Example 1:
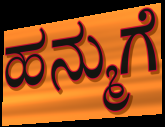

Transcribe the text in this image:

ಹನ್ಮುಗೆ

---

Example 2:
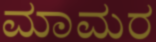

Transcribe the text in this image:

ಮಾಮರ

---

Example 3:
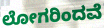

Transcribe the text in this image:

ಲೋಗರಿಂದವೆ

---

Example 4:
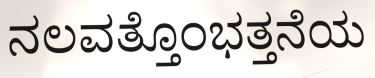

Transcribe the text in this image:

ನಲವತ್ತೊಂಭತ್ತನೆಯ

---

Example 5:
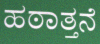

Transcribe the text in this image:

ಹಠಾತ್ತನೆ